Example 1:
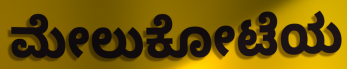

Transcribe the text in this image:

ಮೇಲುಕೋಟೆಯ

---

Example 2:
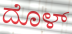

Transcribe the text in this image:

ದೊಳ್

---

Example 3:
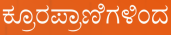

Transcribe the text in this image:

ಕ್ರೂರಪ್ರಾಣಿಗಳಿಂದ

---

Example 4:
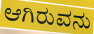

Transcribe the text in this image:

ಆಗಿರುವನು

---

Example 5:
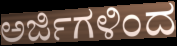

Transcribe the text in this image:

ಅರ್ಜಿಗಳಿಂದ